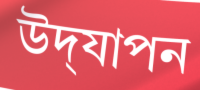
উদ্‌যাপন